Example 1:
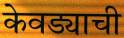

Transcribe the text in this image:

केवड्याची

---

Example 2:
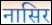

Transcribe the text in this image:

नासिर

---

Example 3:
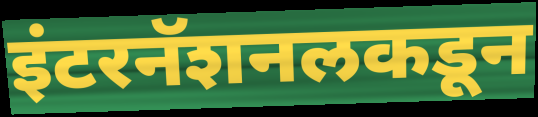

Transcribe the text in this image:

इंटरनॅशनलकडून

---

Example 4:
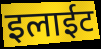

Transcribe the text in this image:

इलाईट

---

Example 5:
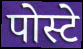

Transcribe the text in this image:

पोस्टे